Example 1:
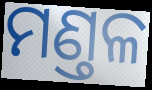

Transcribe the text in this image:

ମଣ୍ତଳ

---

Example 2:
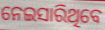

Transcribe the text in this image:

ନେଇସାରିଥିବେ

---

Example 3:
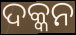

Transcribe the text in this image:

ଦକ୍କନ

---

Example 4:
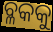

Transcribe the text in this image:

ବ୍ଳକକୁ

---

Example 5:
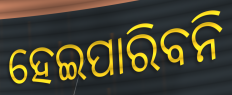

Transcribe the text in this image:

ହେଇପାରିବନି